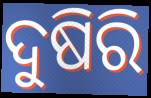
ଦୁଷିରି